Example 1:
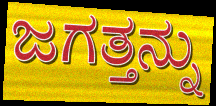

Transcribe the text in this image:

ಜಗತ್ತನ್ನು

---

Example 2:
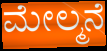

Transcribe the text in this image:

ಮೇಲ್ಮನೆ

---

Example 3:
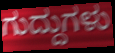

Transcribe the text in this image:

ಗುದ್ದುಗಳು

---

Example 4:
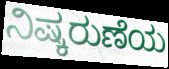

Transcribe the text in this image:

ನಿಷ್ಕರುಣೆಯ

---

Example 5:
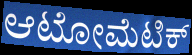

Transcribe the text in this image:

ಆಟೋಮೆಟಿಕ್